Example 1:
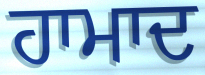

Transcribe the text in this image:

ਹਾਮਾਦ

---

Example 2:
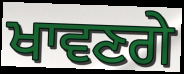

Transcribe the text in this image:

ਖਾਵਣਗੇ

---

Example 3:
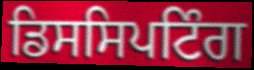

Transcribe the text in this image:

ਡਿਸਸਿਪਟਿੰਗ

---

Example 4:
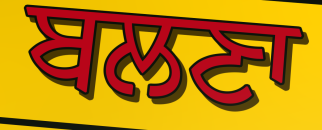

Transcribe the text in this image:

ਬਲਣਾ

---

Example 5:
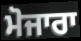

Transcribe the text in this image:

ਮੋਜਾਰਾ